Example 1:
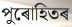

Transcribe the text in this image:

পুৰোহিতৰ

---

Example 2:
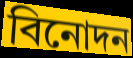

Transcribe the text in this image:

বিনোদন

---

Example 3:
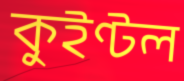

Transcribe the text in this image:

কুইণ্টল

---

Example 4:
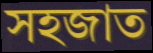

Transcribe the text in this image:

সহজাত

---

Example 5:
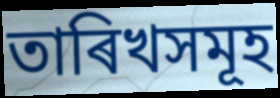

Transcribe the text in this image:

তাৰিখসমূহ